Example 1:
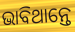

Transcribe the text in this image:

ଭାବିଥାନ୍ତେ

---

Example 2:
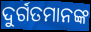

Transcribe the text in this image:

ଦୁର୍ଗତମାନଙ୍କ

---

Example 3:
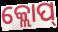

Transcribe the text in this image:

କ୍ଲୋପ୍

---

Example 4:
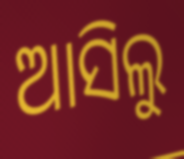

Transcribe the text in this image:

ଆସିଲୁ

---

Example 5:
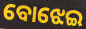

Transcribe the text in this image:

ବୋଝେଇ